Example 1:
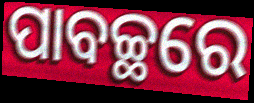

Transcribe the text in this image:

ପାବଚ୍ଛରେ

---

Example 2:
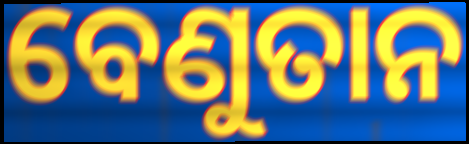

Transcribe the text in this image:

ବେଣୁତାନ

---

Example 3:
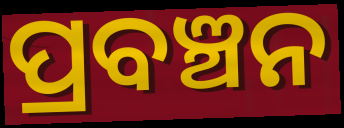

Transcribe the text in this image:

ପ୍ରବଞ୍ଚନ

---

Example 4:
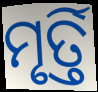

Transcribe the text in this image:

ମୃର୍ତ୍ତି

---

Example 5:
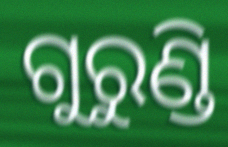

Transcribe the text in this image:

ଗୁରୁଣ୍ଡି